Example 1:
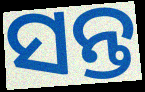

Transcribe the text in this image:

ସନ୍ତ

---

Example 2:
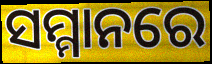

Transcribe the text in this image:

ସମ୍ମାନରେ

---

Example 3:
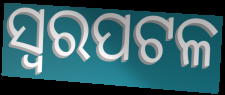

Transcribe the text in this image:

ସ୍ୱରପଟଳ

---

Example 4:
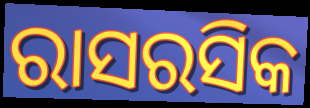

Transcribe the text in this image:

ରାସରସିକ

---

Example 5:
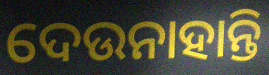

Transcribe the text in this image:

ଦେଉନାହାନ୍ତି